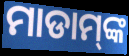
ମାଡାମ୍‌ଙ୍କ